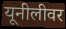
यूनीलीवर